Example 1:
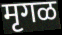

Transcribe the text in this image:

मृगळ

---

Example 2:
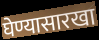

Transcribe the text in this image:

घेण्यासारखा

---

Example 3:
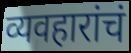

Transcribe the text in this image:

व्यवहारांचं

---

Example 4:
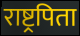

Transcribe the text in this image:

राष्ट्रपिता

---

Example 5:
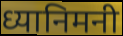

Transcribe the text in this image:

ध्यानिमनी